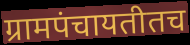
ग्रामपंचायतीतच